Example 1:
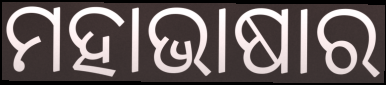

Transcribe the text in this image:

ମହାଭାଷାର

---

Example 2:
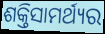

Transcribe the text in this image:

ଶକ୍ତିସାମର୍ଥ୍ୟର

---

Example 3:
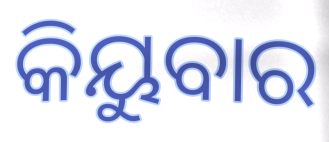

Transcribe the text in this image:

କିୟୁବାର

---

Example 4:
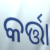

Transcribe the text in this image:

କର୍ତ୍ତା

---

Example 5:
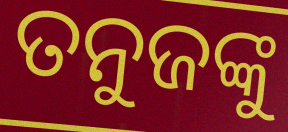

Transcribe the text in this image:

ତନୁଜଙ୍କୁ